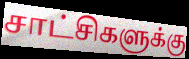
சாட்சிகளுக்கு